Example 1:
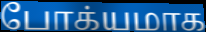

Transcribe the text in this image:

போக்யமாக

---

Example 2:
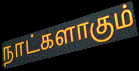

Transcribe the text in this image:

நாட்களாகும்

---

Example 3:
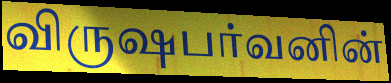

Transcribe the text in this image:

விருஷபர்வனின்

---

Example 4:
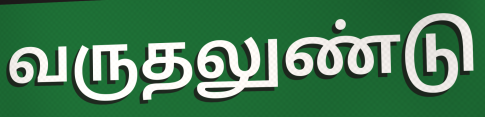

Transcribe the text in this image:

வருதலுண்டு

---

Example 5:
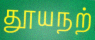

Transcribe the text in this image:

தூயநற்